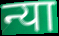
न्या